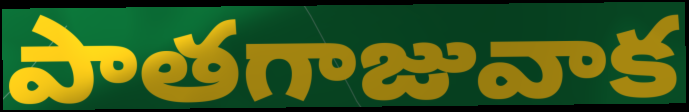
పాతగాజువాక